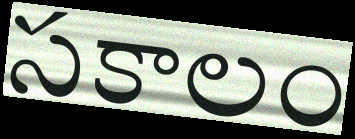
సకాలం